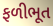
ફળીભૂત